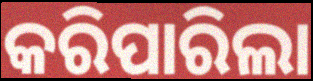
କରିପାରିଲା